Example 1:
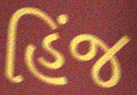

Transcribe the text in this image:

હિંજ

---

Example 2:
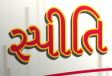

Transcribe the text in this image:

સ્પીતિ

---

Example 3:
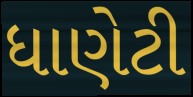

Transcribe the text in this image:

ધાણેટી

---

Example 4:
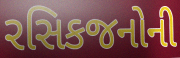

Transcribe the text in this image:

રસિકજનોની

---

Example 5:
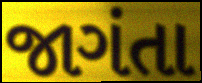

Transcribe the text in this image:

જાગંતા